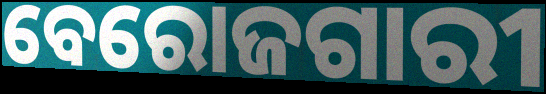
ବେରୋଜଗାରୀ